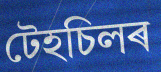
টেহচিলৰ